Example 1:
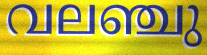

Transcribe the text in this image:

വലഞ്ചു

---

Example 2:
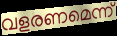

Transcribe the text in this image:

വളരണമെന്ന്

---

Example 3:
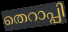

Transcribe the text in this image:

തെറാപ്പി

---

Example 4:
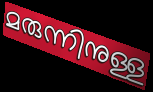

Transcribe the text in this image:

മരുന്നിനുള്ള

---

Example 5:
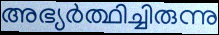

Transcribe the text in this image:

അഭ്യർത്ഥിച്ചിരുന്നു